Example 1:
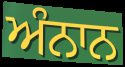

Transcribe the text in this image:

ਅੰਨਾਨ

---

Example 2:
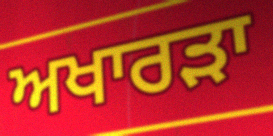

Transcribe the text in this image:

ਅਖਾਰੜਾ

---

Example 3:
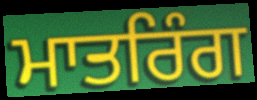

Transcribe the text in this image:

ਮਾਤਰਿੰਗ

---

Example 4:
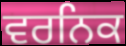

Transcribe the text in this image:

ਵਰਨਿਕ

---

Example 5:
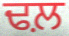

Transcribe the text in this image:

ਢਲ਼